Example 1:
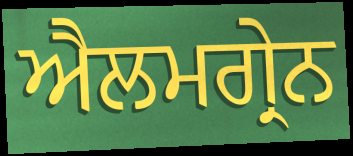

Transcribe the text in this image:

ਐਲਮਗ੍ਰੇਨ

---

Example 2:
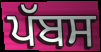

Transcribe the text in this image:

ਪੱਬਸ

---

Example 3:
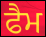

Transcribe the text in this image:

ਫੈਮ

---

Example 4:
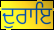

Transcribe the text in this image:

ਦੁਰਾਇ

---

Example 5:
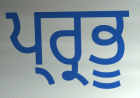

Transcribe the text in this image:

ਪ੍ਰ੍ਰਭੂ